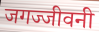
जगज्जीवनी